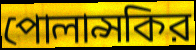
পোলান্সকির